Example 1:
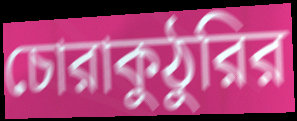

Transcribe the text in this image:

চোরাকুঠুরির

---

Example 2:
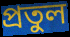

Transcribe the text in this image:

প্রতুল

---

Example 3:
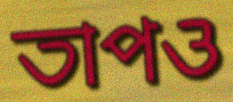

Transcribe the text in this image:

তাপও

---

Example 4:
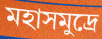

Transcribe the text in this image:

মহাসমুদ্রে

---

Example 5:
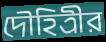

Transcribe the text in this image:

দৌহিত্রীর